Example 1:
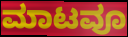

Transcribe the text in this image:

ಮಾಟವೂ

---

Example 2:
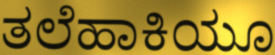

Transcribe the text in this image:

ತಲೆಹಾಕಿಯೂ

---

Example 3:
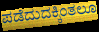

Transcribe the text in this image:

ಪಡೆದುದಕ್ಕಿಂತಲೂ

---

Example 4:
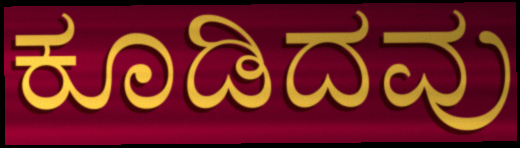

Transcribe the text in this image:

ಕೂಡಿದವು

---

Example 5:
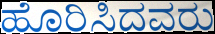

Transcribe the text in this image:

ಹೊರಿಸಿದವರು